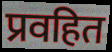
प्रवहित